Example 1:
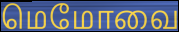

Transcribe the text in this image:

மெமோவை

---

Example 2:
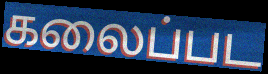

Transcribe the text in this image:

கலைப்பட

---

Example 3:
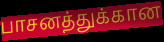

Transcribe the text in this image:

பாசனத்துக்கான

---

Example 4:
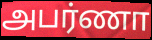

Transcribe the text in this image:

அபர்ணா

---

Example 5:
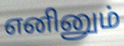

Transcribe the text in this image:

எனினும்